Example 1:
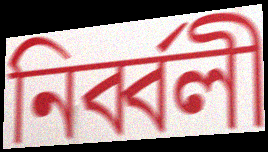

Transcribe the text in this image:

নিৰ্ব্বলী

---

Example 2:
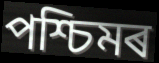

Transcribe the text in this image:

পশ্চিমৰ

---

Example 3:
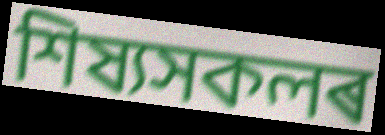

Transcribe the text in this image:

শিষ্যসকলৰ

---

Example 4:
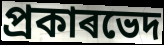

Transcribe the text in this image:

প্ৰকাৰভেদ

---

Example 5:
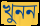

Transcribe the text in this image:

খুনন